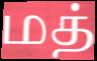
மத்